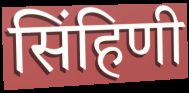
सिंहिणी